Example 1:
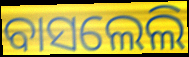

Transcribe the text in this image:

ବାସଲେଲି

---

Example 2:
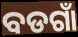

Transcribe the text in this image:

ବଡଗାଁ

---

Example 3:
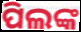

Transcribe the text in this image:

ପିଲଙ୍କ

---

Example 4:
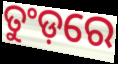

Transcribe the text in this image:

ତୁଂଡ଼ରେ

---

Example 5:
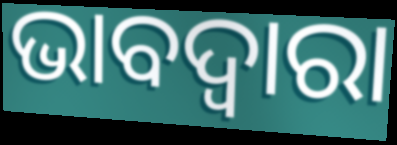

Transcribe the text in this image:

ଭାବଦ୍ଵାରା